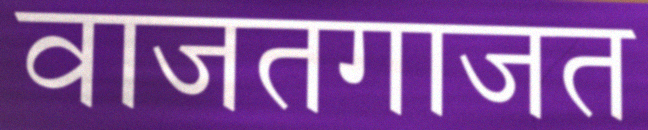
वाजतगाजत